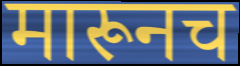
मारूनच